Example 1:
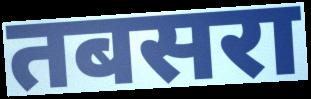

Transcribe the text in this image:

तबसरा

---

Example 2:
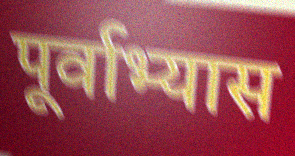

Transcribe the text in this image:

पूर्वाभ्यास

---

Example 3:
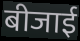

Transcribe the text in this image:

बीजाई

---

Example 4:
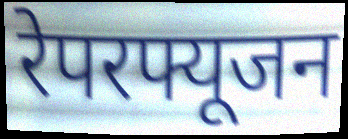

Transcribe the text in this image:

रेपरफ्यूजन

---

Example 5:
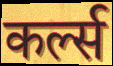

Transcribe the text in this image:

कर्ल्स